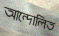
আন্দোলিত